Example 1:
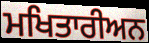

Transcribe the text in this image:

ਮਖਿਤਾਰੀਅਨ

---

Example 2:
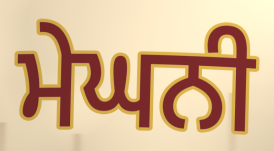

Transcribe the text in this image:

ਮੇਘਨੀ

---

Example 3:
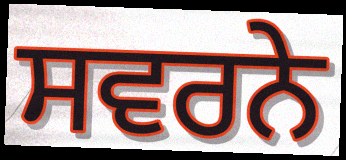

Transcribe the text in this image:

ਸਵਰਨੇ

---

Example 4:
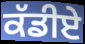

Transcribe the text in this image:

ਕੱਡੀਏ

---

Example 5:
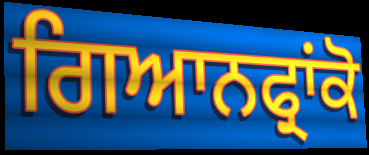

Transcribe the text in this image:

ਗਿਆਨਫ੍ਰਾਂਕੋ